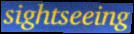
sightseeing